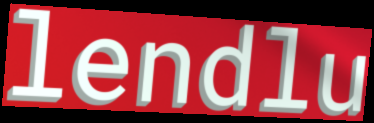
lendlu